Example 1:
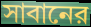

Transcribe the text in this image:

সাবানের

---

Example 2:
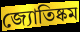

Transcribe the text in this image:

জ্যোতিষ্কম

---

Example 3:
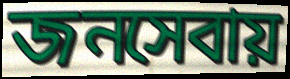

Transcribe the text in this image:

জনসেবায়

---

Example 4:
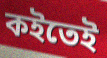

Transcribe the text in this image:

কইতেই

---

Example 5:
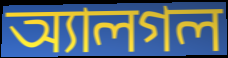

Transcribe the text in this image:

অ্যালগল